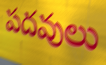
పదవులు